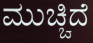
ಮುಚ್ಚಿದೆ